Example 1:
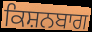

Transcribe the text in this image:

ਕਿਸ਼ਨਬਾਗ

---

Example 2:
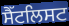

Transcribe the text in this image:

ਸੈੱਟਲਿਸਟ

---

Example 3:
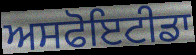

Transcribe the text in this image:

ਅਸਫੋਇਟੀਡਾ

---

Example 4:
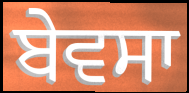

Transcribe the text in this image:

ਬੇਵਸਾ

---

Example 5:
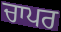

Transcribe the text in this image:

ਚਾਪਰ